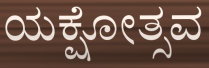
ಯಕ್ಷೋತ್ಸವ